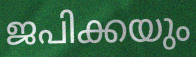
ജപിക്കയും